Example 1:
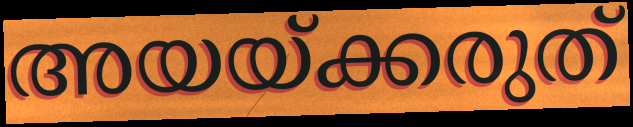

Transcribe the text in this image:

അയയ്ക്കരുത്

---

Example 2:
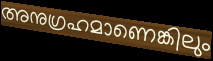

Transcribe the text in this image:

അനുഗ്രഹമാണെങ്കിലും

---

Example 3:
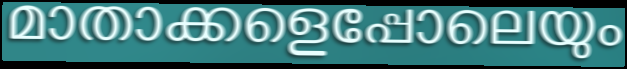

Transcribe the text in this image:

മാതാക്കളെപ്പോലെയും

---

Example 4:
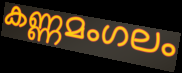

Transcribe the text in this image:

കണ്ണമംഗലം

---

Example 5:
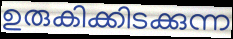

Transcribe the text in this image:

ഉരുകിക്കിടക്കുന്ന